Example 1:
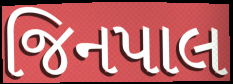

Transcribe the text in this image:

જિનપાલ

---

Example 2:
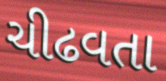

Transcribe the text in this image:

ચીઢવતા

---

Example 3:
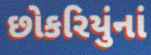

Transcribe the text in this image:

છોકરિયુંનાં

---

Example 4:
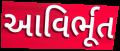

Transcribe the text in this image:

આવિર્ભૂત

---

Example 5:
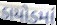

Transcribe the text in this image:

ડાયોડમાં